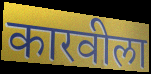
कारवीला